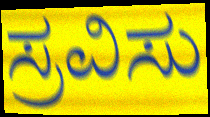
ಸ್ರವಿಸು